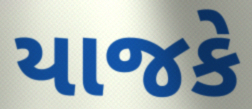
યાજકે